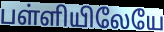
பள்ளியிலேயே